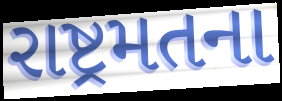
રાષ્ટ્રમતના